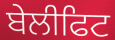
ਬੇਲੀਫਿਟ